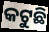
କଟୁଛି